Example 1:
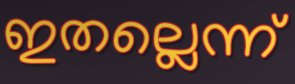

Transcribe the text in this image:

ഇതല്ലെന്ന്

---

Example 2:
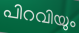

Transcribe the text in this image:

പിറവിയും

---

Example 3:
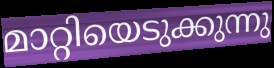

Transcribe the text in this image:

മാറ്റിയെടുക്കുന്നു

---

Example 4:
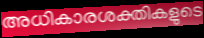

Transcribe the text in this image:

അധികാരശക്തികളുടെ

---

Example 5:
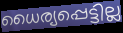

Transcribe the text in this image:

ധൈര്യപ്പെട്ടില്ല